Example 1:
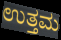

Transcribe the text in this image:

ಉತ್ತಮ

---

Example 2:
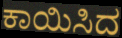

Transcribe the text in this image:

ಕಾಯಿಸಿದ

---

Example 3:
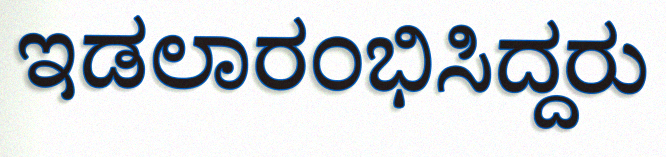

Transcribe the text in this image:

ಇಡಲಾರಂಭಿಸಿದ್ದರು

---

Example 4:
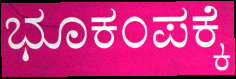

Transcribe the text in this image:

ಭೂಕಂಪಕ್ಕೆ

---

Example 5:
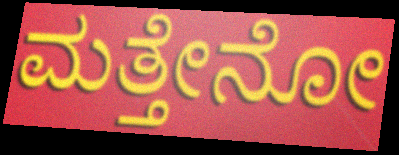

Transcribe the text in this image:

ಮತ್ತೇನೋ